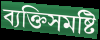
ব্যক্তিসমষ্টি